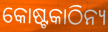
କୋଷ୍ଟକାଠିନ୍ୟ